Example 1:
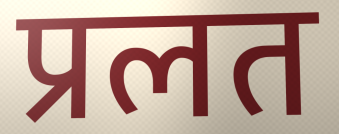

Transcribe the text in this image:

प्रलत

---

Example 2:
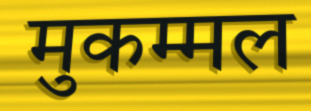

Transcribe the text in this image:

मुकम्मल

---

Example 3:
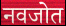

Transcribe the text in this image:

नवजोत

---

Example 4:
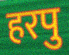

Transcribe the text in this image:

हरपु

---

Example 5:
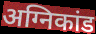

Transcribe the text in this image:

अग्निकांड